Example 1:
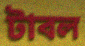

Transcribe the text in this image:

টাবল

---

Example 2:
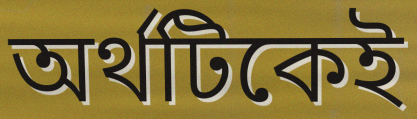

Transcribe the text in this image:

অর্থটিকেই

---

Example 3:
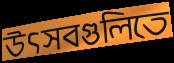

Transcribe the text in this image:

উৎসবগুলিতে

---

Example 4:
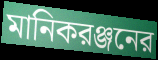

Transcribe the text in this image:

মানিকরঞ্জনের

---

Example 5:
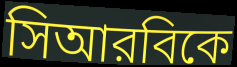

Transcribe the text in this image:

সিআরবিকে